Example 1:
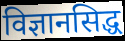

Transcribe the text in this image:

विज्ञानसिद्ध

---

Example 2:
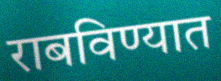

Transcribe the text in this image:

राबविण्‍यात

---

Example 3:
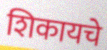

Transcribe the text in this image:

शिकायचे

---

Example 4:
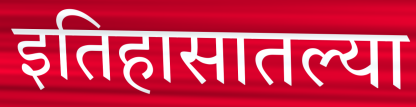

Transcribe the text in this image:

इतिहासातल्या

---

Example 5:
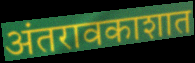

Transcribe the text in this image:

अंतरावकाशात